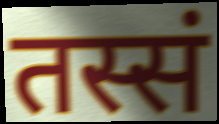
तस्सं